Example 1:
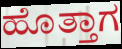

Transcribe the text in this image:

ಹೊತ್ತಾಗ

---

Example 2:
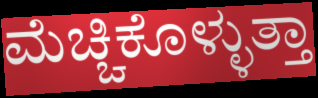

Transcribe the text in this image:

ಮೆಚ್ಚಿಕೊಳ್ಳುತ್ತಾ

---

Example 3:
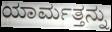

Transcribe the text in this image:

ಯಾರ್ಮತ್ತನ್ನು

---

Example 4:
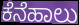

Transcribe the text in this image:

ಕೆನೆಹಾಲು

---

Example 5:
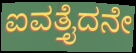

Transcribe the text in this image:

ಐವತ್ತೈದನೇ